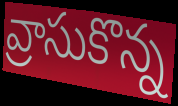
వ్రాసుకొన్న